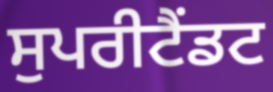
ਸੁਪਰੀਟੈਂਡਟ